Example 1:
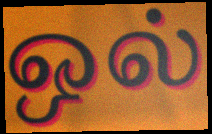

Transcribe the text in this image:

ஒல்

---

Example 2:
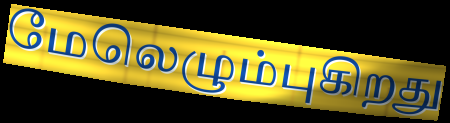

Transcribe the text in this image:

மேலெழும்புகிறது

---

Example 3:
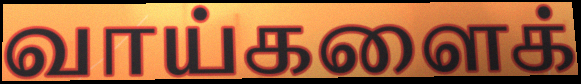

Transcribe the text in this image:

வாய்களைக்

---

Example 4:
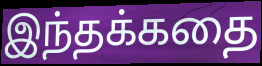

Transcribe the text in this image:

இந்தக்கதை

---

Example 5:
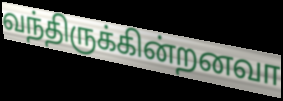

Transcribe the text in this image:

வந்திருக்கின்றனவா